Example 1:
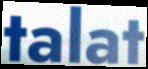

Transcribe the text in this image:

talat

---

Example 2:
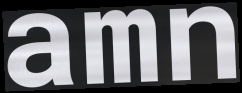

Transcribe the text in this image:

amn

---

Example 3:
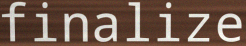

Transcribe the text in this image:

finalize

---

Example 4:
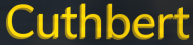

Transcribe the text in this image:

Cuthbert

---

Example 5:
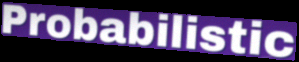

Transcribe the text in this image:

Probabilistic